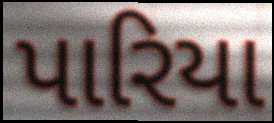
પારિયા